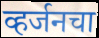
व्हर्जनचा